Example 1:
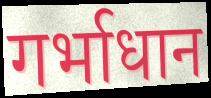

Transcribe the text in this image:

गर्भाधान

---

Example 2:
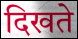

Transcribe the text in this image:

दिखते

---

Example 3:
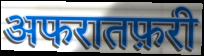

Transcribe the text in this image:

अफरातफ़री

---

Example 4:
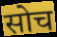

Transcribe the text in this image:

सोच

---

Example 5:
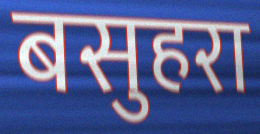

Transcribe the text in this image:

बसुहरा